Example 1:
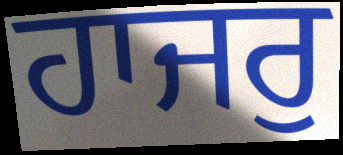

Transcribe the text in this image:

ਹਾਜਰੁ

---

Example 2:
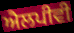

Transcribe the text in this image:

ਐਲਪੀਵੀ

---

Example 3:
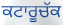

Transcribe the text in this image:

ਕਟਾਰੂਚੱਕ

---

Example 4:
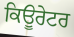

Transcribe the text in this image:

ਕਿਊਰੇਟਰ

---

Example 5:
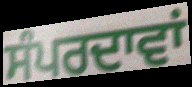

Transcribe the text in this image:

ਸੰਪਰਦਾਵਾਂ